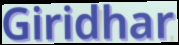
Giridhar